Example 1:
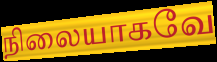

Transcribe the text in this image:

நிலையாகவே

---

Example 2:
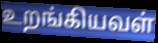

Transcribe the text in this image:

உறங்கியவள்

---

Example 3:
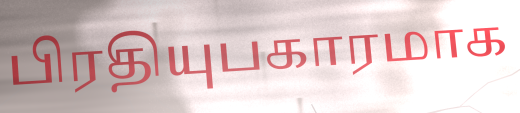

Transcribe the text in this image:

பிரதியுபகாரமாக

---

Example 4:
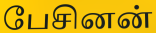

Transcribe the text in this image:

பேசினன்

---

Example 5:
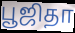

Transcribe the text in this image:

பூஜிதா